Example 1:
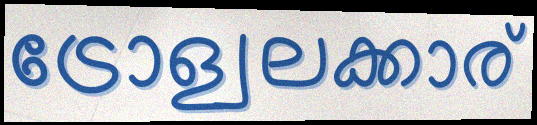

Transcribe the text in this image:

ട്രോള്വലക്കാര്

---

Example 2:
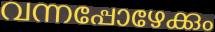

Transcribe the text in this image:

വന്നപ്പോഴേക്കും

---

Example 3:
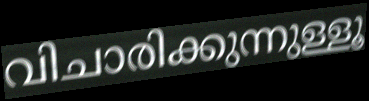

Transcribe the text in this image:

വിചാരിക്കുന്നുള്ളൂ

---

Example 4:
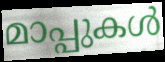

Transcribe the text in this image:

മാപ്പുകൾ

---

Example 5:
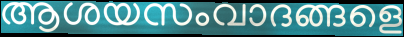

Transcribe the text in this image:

ആശയസംവാദങ്ങളെ